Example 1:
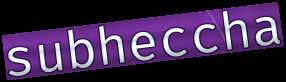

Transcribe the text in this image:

subheccha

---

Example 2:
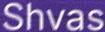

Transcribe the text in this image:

Shvas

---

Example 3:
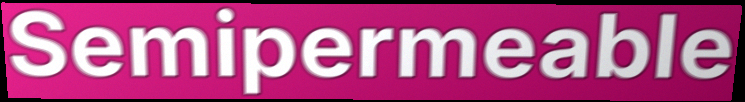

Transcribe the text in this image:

Semipermeable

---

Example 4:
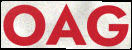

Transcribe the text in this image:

OAG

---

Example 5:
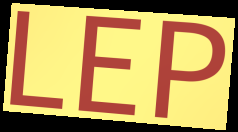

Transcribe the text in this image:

LEP